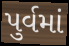
પુર્વમાં